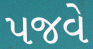
પજવે